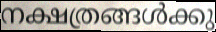
നക്ഷത്രങ്ങൾക്കു